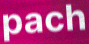
pach